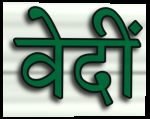
वेदीं